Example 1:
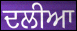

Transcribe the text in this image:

ਦਲੀਆ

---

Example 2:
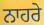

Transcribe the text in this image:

ਨਾਹਰੇ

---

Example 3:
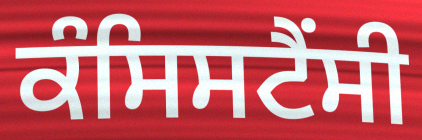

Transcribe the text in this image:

ਕੰਸਿਸਟੈਂਸੀ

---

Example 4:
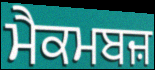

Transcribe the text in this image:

ਮੈਕਮਬਜ਼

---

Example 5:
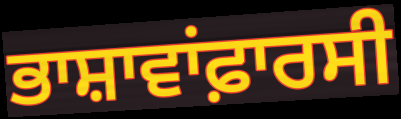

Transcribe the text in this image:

ਭਾਸ਼ਾਵਾਂਫ਼ਾਰਸੀ